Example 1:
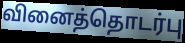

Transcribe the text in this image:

வினைத்தொடர்பு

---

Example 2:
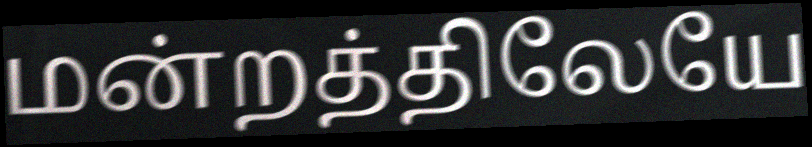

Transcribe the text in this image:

மன்றத்திலேயே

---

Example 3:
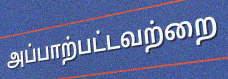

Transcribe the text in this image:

அப்பாற்பட்டவற்றை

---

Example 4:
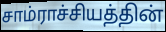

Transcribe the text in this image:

சாம்ராச்சியத்தின்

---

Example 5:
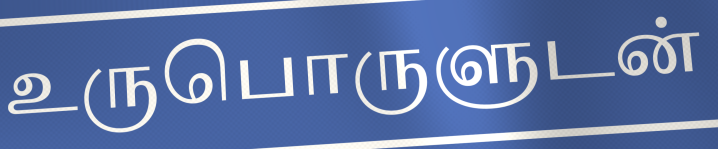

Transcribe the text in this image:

உருபொருளுடன்